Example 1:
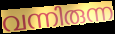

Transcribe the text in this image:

വന്നിരുന്ന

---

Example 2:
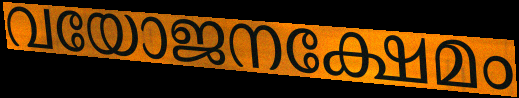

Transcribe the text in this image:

വയോജനക്ഷേമം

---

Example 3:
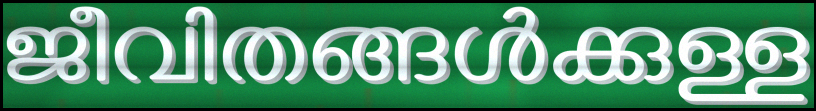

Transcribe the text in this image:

ജീവിതങ്ങൾക്കുള്ള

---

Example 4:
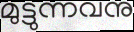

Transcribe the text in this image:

മുട്ടുന്നവനു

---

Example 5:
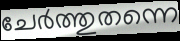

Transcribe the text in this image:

ചേർത്തുതന്നെ